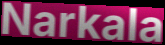
Narkala